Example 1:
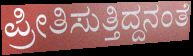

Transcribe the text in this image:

ಪ್ರೀತಿಸುತ್ತಿದ್ದನಂತೆ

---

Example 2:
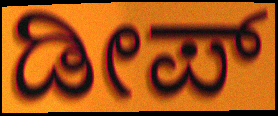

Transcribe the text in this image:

ಡೀಪ್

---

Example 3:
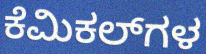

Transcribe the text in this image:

ಕೆಮಿಕಲ್‌ಗಳ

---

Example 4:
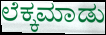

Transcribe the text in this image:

ಲೆಕ್ಕಮಾಡು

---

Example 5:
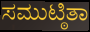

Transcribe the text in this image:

ಸಮುಟ್ಠಿತಾ